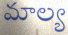
మాల్య